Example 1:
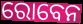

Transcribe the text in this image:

ରୋବେନ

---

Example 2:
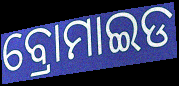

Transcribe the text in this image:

ବ୍ରୋମାଇଡ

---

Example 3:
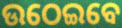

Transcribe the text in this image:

ଉଠେଇବେ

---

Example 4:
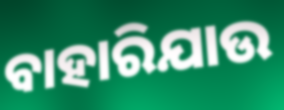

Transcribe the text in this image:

ବାହାରିଯାଉ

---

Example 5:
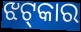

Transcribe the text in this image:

ଝଟ୍‍କାର